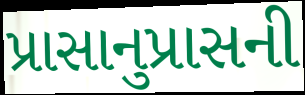
પ્રાસાનુપ્રાસની